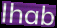
Ihab